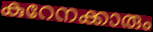
കുറേനക്കാരും